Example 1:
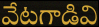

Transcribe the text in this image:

వేటగాడివి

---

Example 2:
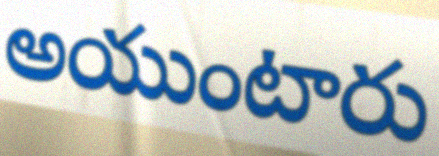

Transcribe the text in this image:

అయుంటారు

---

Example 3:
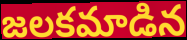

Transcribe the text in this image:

జలకమాడిన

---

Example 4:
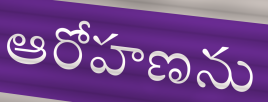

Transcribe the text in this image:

ఆరోహణను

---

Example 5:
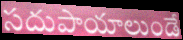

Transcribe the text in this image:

సదుపాయాలుండే